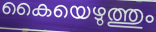
കൈയെഴുത്തും